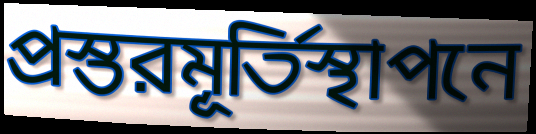
প্রস্তরমূর্তিস্থাপনে